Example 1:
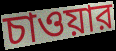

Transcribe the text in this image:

চাওয়ার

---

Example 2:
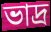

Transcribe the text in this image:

ভাদ্র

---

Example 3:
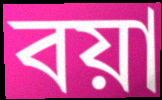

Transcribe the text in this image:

বয়া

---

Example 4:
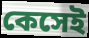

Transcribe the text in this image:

কেসেই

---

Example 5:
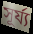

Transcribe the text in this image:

সূর্য্য